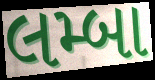
લમ્બા